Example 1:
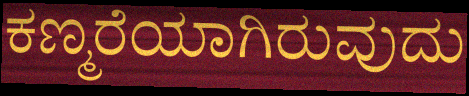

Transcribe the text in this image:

ಕಣ್ಮರೆಯಾಗಿರುವುದು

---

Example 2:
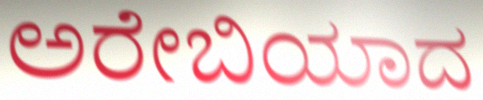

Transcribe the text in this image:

ಅರೇಬಿಯಾದ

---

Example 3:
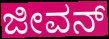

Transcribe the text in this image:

ಜೀವನ್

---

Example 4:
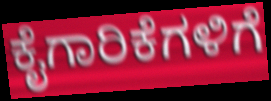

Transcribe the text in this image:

ಕೈಗಾರಿಕೆಗಳಿಗೆ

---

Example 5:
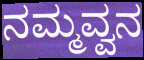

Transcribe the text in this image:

ನಮ್ಮವ್ವನ